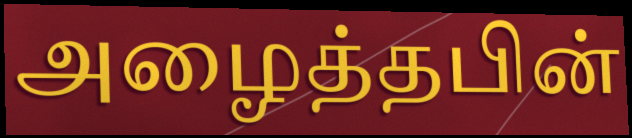
அழைத்தபின்